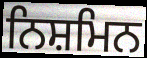
ਨਿਸ਼ਮਿਨ